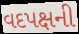
વદપક્ષની